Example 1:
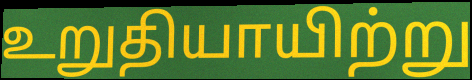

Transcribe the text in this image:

உறுதியாயிற்று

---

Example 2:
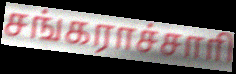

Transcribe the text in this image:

சங்கராச்சாரி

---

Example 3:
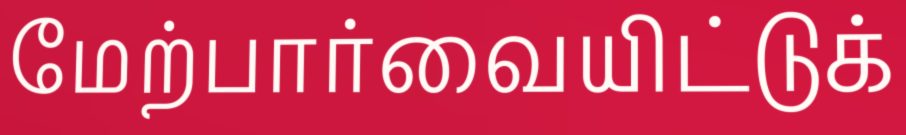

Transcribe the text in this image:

மேற்பார்வையிட்டுக்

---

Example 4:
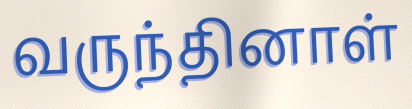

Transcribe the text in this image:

வருந்தினாள்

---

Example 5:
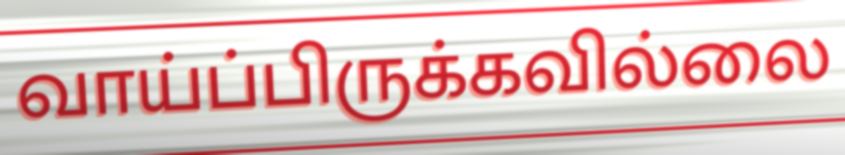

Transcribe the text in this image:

வாய்ப்பிருக்கவில்லை